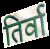
तिर्वा